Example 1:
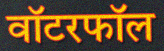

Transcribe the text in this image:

वॉटरफॉल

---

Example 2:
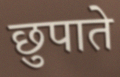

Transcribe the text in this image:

छुपाते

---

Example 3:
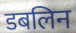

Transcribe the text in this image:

डबलिन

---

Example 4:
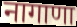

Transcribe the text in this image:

नागाणा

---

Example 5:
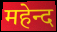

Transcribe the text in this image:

महेन्द